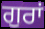
ਗੁਰਾਂ